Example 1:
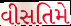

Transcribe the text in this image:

વીસતિમે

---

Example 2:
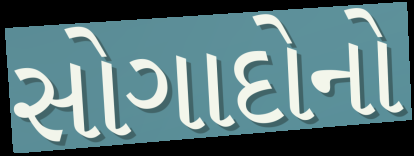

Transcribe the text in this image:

સોગાદોનો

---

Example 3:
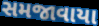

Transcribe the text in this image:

સમજાવાયા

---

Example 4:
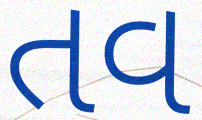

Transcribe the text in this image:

તવ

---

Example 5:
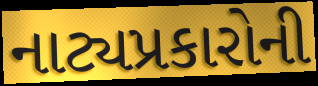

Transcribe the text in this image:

નાટ્યપ્રકારોની